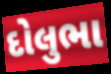
દોલુભા